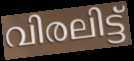
വിരലിട്ട്